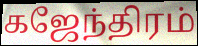
கஜேந்திரம்